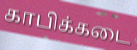
காபிக்கடை